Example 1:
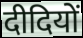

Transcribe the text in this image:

दीदियों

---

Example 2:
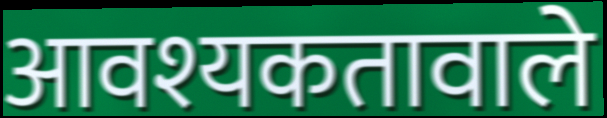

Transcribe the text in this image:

आवश्यकतावाले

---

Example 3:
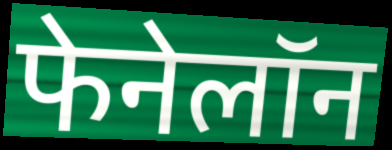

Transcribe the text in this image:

फेनेलॉन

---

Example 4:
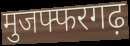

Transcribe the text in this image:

मुजफ्फरगढ़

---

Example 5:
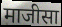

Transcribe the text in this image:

माजीसा